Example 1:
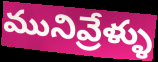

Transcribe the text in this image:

మునివ్రేళ్ళు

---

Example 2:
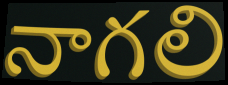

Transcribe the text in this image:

నాగలి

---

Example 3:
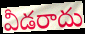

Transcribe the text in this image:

వీడరాదు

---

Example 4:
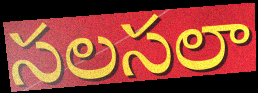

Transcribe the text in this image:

సలసలా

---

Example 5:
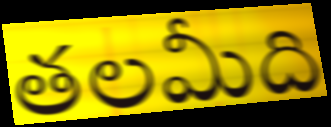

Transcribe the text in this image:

తలమీది